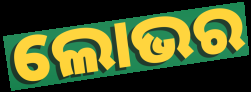
ଲୋଭର